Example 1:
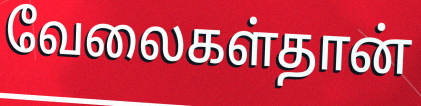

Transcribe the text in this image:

வேலைகள்தான்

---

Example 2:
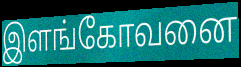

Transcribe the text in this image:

இளங்கோவனை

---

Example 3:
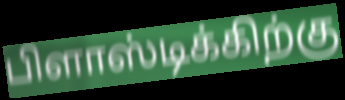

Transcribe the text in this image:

பிளாஸ்டிக்கிற்கு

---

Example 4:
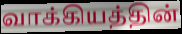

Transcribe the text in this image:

வாக்கியத்தின்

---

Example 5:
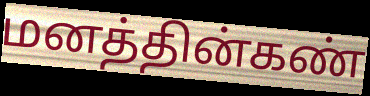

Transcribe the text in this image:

மனத்தின்கண்